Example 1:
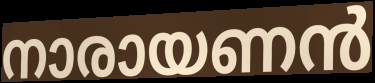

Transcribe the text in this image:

നാരായണൻ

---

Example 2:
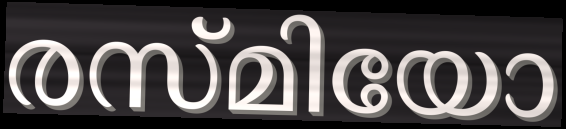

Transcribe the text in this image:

രസ്മിയോ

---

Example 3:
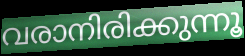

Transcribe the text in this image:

വരാനിരിക്കുന്നൂ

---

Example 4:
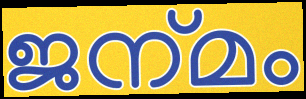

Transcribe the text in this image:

ജന്‌മം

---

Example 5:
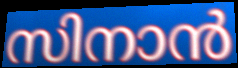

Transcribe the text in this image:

സിനാൻ